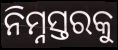
ନିମ୍ନସ୍ତରକୁ